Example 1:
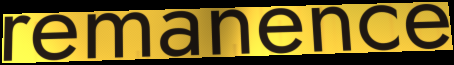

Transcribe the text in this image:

remanence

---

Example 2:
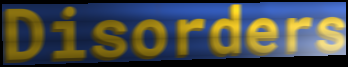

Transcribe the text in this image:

Disorders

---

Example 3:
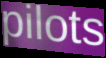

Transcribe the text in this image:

pilots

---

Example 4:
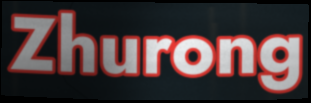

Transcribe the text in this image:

Zhurong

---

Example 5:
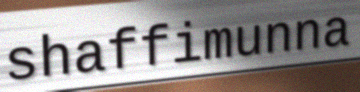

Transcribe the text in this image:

shaffimunna